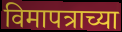
विमापत्राच्या